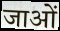
जाओं